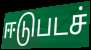
ஈடுபடச்